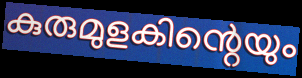
കുരുമുളകിന്റെയും